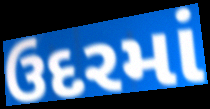
ઉદરમાં